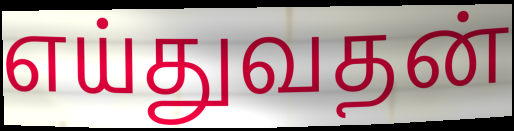
எய்துவதன்